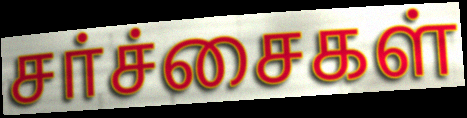
சர்ச்சைகள்